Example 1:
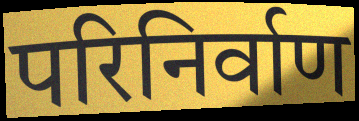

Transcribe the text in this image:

परिनिर्वाण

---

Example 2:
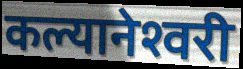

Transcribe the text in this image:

कल्यानेश्वरी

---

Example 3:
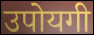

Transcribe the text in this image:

उपोयगी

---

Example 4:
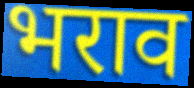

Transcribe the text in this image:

भराव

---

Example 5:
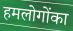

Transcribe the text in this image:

हमलोगोंका